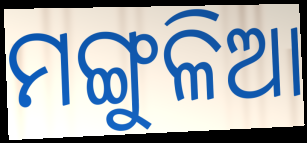
ମଙ୍ଗୁଳିଆ